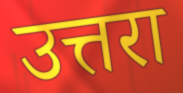
उत्तरा